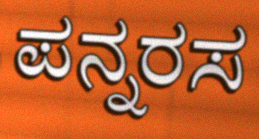
ಪನ್ನರಸ